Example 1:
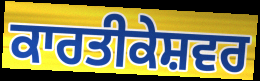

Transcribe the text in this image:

ਕਾਰਤੀਕੇਸ਼ਵਰ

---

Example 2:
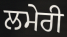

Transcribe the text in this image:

ਲਮੇਰੀ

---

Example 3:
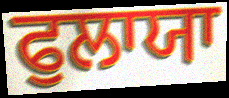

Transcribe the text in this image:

ਫੁਲਾਯਾ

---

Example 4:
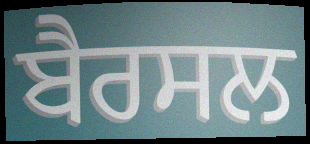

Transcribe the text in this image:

ਬੈਰਸਲ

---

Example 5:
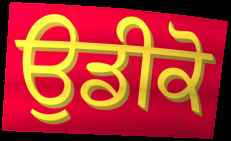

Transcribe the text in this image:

ਉਡੀਕੋ